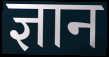
ज्ञान